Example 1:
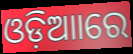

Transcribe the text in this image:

ଓଡ଼ିଆାରେ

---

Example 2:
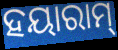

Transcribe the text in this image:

ହୟାରାମ୍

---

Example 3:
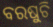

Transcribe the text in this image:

ବରଷୁଚି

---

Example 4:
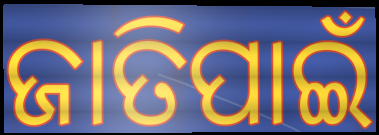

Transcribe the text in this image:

ଜାତିପାଇଁ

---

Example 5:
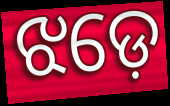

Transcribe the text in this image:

ଝଡ଼େ